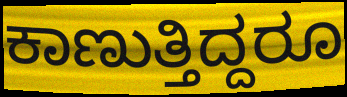
ಕಾಣುತ್ತಿದ್ದರೂ